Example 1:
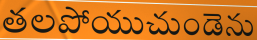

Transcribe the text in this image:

తలపోయుచుండెను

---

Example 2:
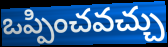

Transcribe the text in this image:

ఒప్పించవచ్చు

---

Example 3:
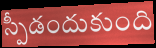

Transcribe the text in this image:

స్పీడందుకుంది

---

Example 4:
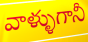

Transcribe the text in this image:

వాళ్ళుగానీ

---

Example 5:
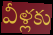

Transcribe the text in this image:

వీళ్లకు